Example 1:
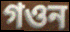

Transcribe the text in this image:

গওন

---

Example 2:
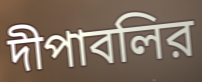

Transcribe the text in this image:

দীপাবলির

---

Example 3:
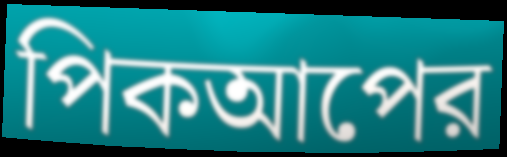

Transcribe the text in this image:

পিকআপের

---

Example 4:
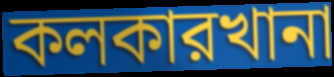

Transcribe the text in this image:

কলকারখানা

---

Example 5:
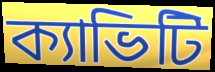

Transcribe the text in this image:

ক্যাভিটি